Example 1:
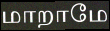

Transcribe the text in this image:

மாறாமே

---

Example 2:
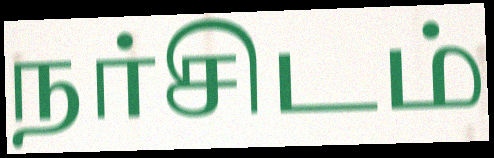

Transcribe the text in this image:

நர்சிடம்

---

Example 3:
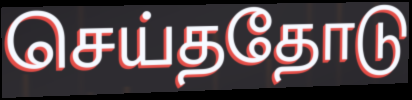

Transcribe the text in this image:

செய்ததோடு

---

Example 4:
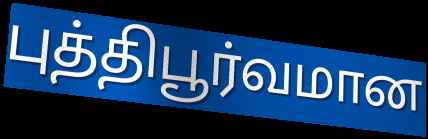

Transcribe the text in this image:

புத்திபூர்வமான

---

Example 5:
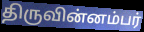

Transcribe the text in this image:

திருவின்னம்பர்